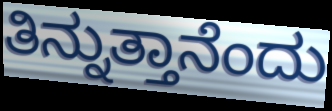
ತಿನ್ನುತ್ತಾನೆಂದು